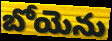
బోయెను